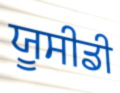
ਯੂਸੀਡੀ